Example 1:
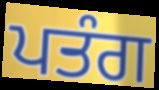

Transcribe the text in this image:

ਪਤੰਗ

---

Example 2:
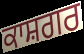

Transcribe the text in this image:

ਕਾਸ਼ਗਰ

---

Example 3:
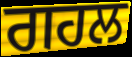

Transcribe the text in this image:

ਗਹਲ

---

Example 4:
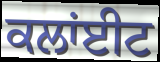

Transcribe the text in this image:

ਕਲਾਂਈਟ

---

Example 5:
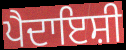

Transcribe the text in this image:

ਪੈਦਾਇਸ਼ੀ